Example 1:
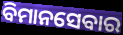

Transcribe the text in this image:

ବିମାନସେବାର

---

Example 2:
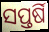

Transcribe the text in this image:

ସପ୍ତର୍ଷି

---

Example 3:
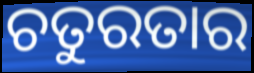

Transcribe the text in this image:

ଚତୁରତାର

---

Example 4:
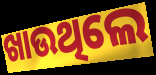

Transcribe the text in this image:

ଖାଉଥିଲେ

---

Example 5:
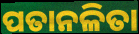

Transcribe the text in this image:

ପତାନଳିତା